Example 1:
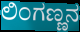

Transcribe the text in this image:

ಲಿಂಗಣ್ಣನ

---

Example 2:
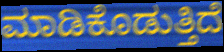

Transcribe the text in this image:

ಮಾಡಿಕೊಡುತ್ತಿದೆ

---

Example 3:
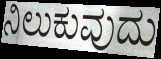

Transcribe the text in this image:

ನಿಲುಕುವುದು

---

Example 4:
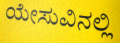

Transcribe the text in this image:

ಯೇಸುವಿನಲ್ಲಿ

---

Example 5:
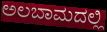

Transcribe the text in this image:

ಅಲಬಾಮದಲ್ಲಿ